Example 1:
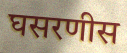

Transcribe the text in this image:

घसरणीस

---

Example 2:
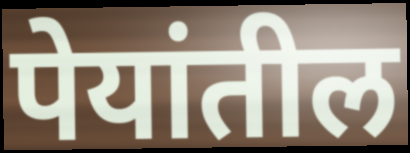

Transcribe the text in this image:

पेयांतील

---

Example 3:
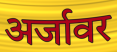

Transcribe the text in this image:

अर्जावर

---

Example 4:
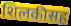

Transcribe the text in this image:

शिलकीसह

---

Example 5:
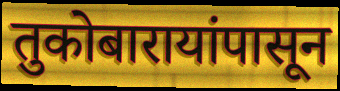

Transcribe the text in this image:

तुकोबारायांपासून